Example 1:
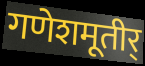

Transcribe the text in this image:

गणेशमूतीर्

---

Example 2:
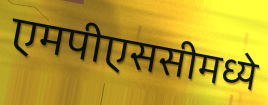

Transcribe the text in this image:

एमपीएससीमध्ये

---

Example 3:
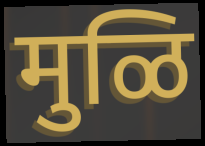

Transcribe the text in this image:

मुळि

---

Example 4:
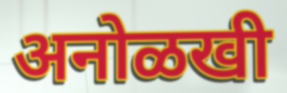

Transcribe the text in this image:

अनोळखी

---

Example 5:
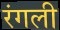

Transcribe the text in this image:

रंगली